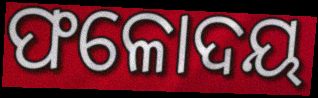
ଫଳୋଦୟ